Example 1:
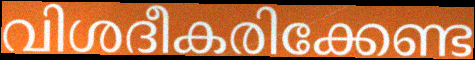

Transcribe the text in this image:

വിശദീകരിക്കേണ്ട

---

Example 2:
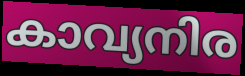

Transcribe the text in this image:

കാവ്യനിര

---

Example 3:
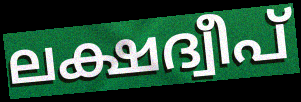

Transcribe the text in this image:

ലക്ഷദ്വീപ്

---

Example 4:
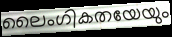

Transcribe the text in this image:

ലൈംഗികതയേയും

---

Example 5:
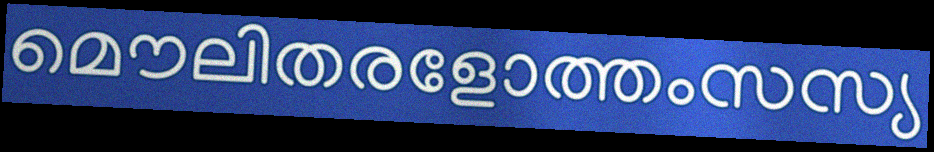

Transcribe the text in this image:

മൌലിതരളോത്തംസസ്യ